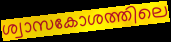
ശ്വാസകോശത്തിലെ